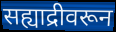
सह्याद्रीवरून